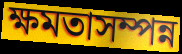
ক্ষমতাসম্পন্ন